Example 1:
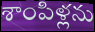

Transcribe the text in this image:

శాంపిళ్లను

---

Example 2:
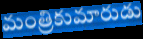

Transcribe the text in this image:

మంత్రికుమారుడు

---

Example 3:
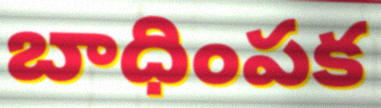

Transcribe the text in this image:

బాధింపక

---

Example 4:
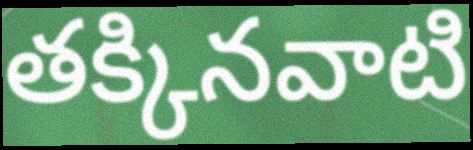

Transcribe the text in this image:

తక్కినవాటి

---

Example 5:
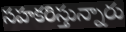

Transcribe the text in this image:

సహకరిస్తున్నారు